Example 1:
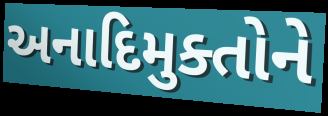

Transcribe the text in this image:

અનાદિમુક્તોને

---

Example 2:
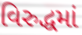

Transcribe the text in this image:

વિરુદ્ધમાં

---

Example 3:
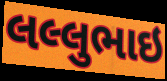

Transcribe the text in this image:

લલ્લુભાઇ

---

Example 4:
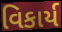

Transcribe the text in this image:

વિકાર્ય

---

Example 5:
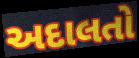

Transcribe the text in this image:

અદાલતો